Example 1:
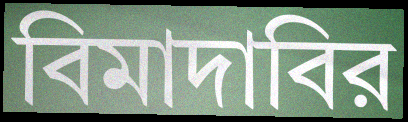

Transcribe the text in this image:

বিমাদাবির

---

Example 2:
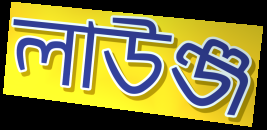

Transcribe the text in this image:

লাউঞ্জ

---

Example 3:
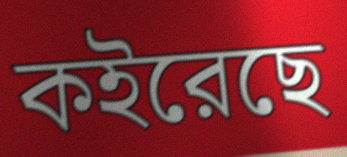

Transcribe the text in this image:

কইরেছে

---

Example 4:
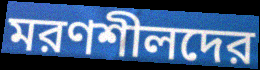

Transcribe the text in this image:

মরণশীলদের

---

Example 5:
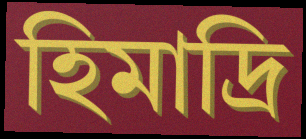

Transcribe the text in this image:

হিমাদ্রি